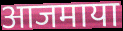
आजमाया